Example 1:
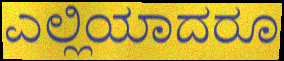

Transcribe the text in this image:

ಎಲ್ಲಿಯಾದರೂ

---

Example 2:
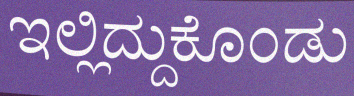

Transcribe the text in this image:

ಇಲ್ಲಿದ್ದುಕೊಂಡು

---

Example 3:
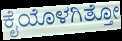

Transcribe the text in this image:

ಕೈಯೊಳಗಿತ್ತೋ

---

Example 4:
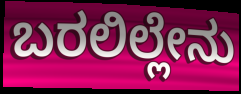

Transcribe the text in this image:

ಬರಲಿಲ್ಲೇನು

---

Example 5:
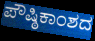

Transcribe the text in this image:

ಪೌಷ್ಠಿಕಾಂಶದ